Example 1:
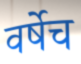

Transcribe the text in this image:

वर्षेच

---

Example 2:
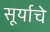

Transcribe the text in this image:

सूर्याचे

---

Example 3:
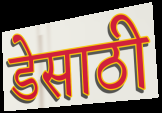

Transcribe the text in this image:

डेसाठी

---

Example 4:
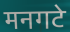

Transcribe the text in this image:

मनगटे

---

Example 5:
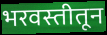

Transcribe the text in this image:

भरवस्तीतून